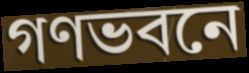
গণভবনে